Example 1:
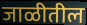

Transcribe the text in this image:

जाळीतील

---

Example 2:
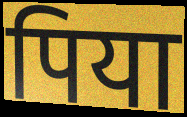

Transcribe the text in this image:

पिया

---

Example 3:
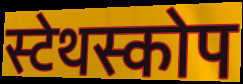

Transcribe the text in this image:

स्टेथस्कोप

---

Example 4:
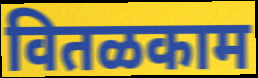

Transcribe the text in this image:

वितळकाम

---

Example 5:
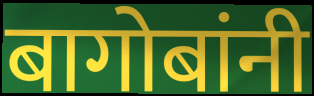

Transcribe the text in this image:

बागोबांनी